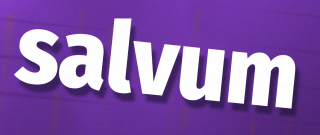
salvum